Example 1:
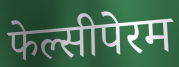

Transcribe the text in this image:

फेल्सीपेरम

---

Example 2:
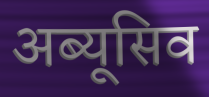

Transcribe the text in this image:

अब्यूसिव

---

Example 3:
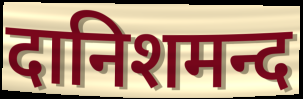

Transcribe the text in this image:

दानिशमन्द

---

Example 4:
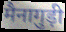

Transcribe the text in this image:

मैनागुड़ी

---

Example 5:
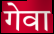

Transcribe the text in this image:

गेवा